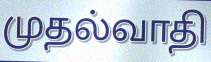
முதல்வாதி